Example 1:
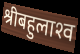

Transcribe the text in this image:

श्रीबहुलाश्व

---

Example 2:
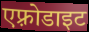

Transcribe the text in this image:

एफ़्रोडाइट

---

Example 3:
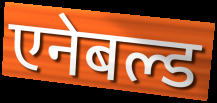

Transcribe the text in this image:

एनेबल्ड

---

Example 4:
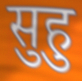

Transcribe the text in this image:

सुहु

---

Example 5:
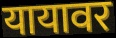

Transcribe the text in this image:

यायावर